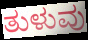
ತುಳುವು